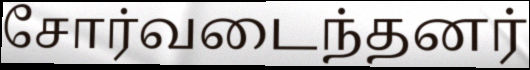
சோர்வடைந்தனர்